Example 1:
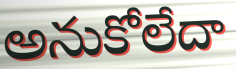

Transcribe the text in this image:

అనుకోలేదా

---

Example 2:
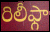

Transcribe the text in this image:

రిలీఫ్గా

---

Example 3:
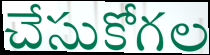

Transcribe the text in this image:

చేసుకోగల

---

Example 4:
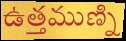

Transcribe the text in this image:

ఉత్తముణ్ని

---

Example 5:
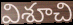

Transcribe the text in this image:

విశూచి